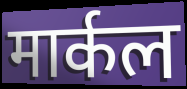
मार्कल